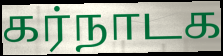
கர்நாடக